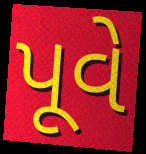
પૂવે